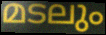
മടലും